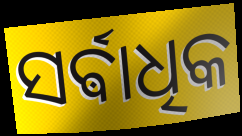
ସର୍ଵାଧିକ